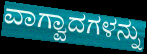
ವಾಗ್ವಾದಗಳನ್ನು